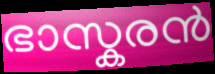
ഭാസ്കരൻ